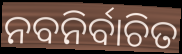
ନବନିର୍ବାଚିତ